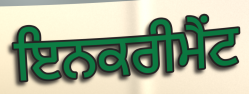
ਇਨਕਰੀਮੈਂਟ